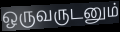
ஒருவருடனும்